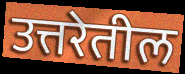
उत्तरेतील